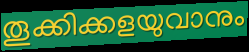
തൂക്കിക്കളയുവാനും